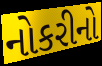
નોકરીનો